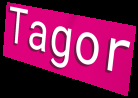
Tagor